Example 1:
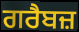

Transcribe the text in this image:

ਗਰੈਬਜ਼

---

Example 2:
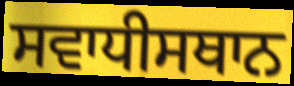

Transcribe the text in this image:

ਸਵਾਧੀਸਥਾਨ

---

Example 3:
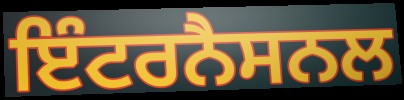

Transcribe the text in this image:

ਇੰਟਰਨੈਸਨਲ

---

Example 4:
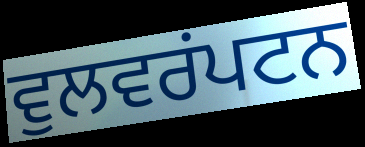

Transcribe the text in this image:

ਵੁਲਵਰਂਪਟਨ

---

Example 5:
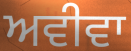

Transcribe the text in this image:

ਅਵੀਵਾ